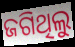
ଜଗିଥିଲୁ